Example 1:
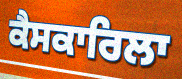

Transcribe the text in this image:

ਕੈਸਕਾਰਿਲਾ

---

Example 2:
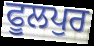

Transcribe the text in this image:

ਫੂਲਪੁਰ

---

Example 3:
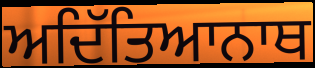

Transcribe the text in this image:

ਅਦਿੱਤਿਆਨਾਥ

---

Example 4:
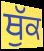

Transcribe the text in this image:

ਥੁੱਕ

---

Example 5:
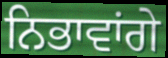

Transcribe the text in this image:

ਨਿਭਾਵਾਂਗੇ